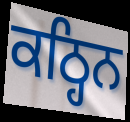
ਕਠ੍ਹਿਨ